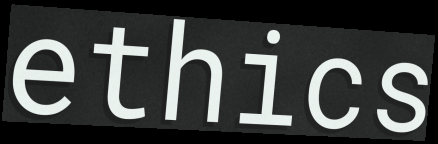
ethics